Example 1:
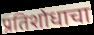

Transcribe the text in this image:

प्रतिशोधाचा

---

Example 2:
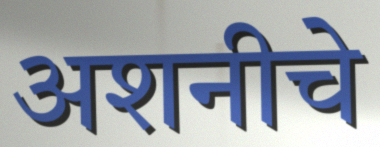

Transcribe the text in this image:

अशनीचे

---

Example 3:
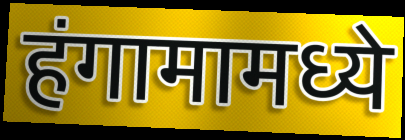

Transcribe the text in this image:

हंगामामध्ये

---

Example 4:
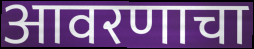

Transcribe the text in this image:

आवरणाचा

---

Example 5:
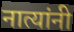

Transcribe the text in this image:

नात्यांनी